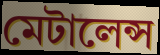
মেটালেন্স